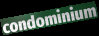
condominium